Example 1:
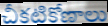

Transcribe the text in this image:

చీకటికోణాలు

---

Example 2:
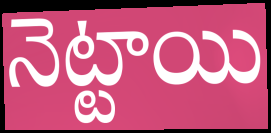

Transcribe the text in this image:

నెట్టాయి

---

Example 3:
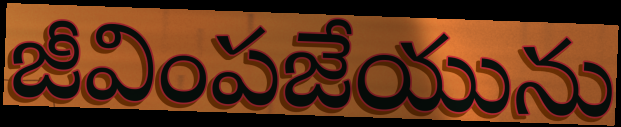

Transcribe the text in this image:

జీవింపజేయును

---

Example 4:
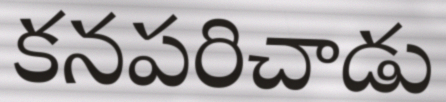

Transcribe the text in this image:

కనపరిచాడు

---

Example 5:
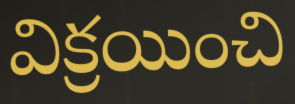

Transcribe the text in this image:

విక్రయించి